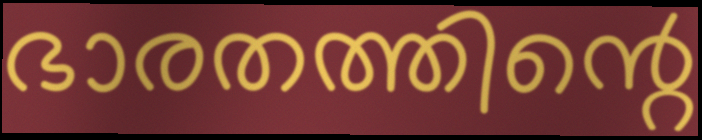
ഭാരതത്തിന്റെ